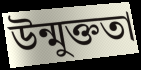
উন্মুক্ততা